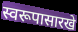
स्वरूपासारखे